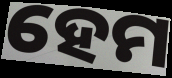
ହେମ